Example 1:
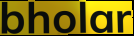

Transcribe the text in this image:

bholar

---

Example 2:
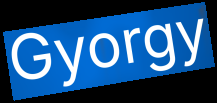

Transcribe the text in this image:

Gyorgy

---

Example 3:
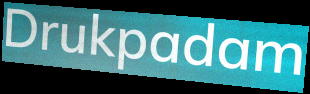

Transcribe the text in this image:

Drukpadam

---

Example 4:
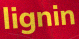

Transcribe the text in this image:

lignin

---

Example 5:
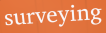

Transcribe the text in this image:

surveying